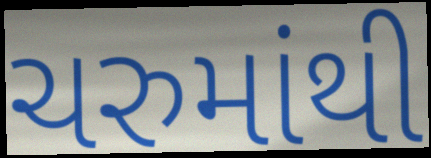
ચરુમાંથી